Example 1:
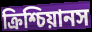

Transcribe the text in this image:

ক্রিশ্চিয়ানস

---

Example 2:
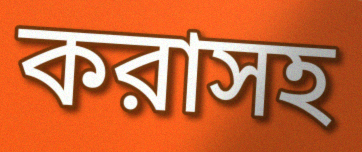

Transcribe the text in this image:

করাসহ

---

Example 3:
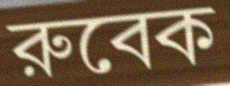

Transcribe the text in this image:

রুবেক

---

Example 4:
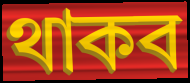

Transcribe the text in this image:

থাকব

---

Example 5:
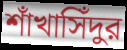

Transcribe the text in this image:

শাঁখাসিঁদুর